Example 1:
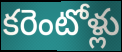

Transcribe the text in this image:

కరెంటోళ్లు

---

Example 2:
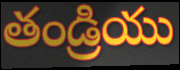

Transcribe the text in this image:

తండ్రియు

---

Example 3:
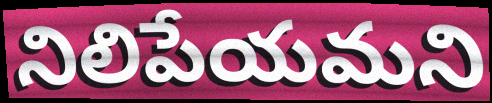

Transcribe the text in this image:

నిలిపేయమని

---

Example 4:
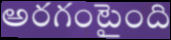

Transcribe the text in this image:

అరగంటైంది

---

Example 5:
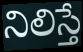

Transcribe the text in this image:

నిలిస్తే